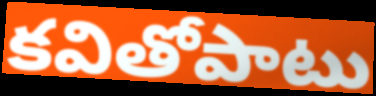
కవితోపాటు